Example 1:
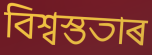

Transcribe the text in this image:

বিশ্বস্ততাৰ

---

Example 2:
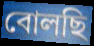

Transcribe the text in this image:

বোলছি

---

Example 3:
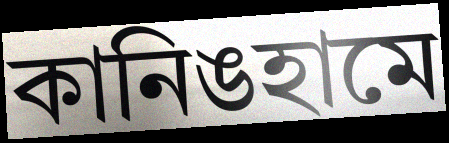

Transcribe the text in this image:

কানিঙহামে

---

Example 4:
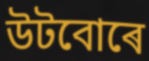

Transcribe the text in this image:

উটবোৰে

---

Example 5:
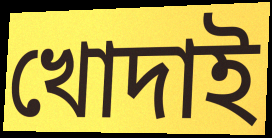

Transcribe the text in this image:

খোদাই